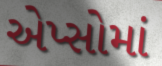
એપ્સોમાં